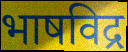
भाषविद्र